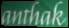
anthak